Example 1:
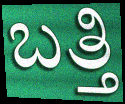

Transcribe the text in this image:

ಬತ್ತಿ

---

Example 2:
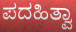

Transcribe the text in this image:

ಪದಹಿತ್ವಾ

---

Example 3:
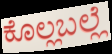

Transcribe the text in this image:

ಕೊಲ್ಲಬಲ್ಲೆ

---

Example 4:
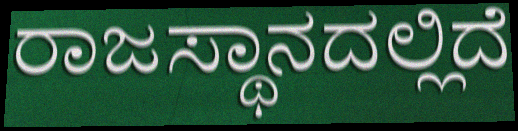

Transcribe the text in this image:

ರಾಜಸ್ಥಾನದಲ್ಲಿದೆ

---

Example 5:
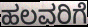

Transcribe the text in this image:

ಹಲವರಿಗೆ